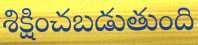
శిక్షించబడుతుంది